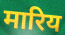
मारिय